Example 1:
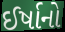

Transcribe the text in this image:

ઈર્ષાનો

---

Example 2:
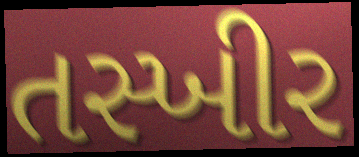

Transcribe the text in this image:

તસ્ખીર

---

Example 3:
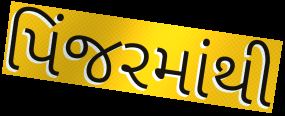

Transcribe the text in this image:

પિંજરમાંથી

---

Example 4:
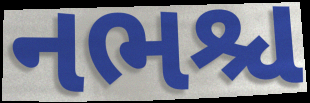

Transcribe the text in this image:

નભશ્ચ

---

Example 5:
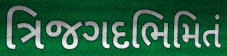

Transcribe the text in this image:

ત્રિજગદભિમિતં